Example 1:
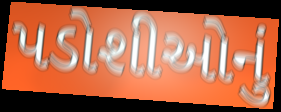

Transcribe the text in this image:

પડોશીઓનું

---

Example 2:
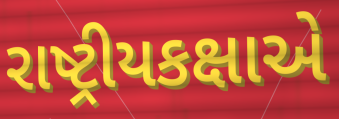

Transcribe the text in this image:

રાષ્ટ્રીયકક્ષાએ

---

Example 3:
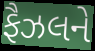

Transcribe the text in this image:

ફૈઝલને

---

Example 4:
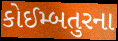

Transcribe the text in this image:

કોઈમ્બતુરના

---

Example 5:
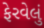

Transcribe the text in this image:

ફેરવેલું